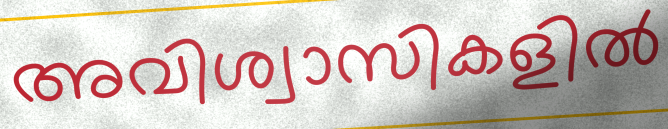
അവിശ്വാസികളിൽ